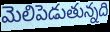
మెలిపెడుతున్నది